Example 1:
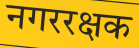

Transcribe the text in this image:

नगररक्षक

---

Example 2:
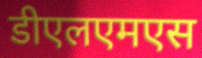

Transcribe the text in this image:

डीएलएमएस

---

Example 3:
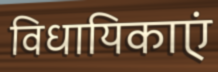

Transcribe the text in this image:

विधायिकाएं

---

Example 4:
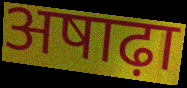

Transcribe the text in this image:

अषाढ़ा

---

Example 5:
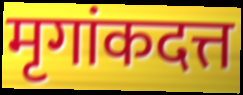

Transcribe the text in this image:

मृगांकदत्त